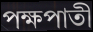
পক্ষপাতী